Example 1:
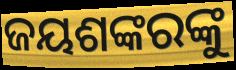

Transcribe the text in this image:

ଜୟଶଙ୍କରଙ୍କୁ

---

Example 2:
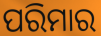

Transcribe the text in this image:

ପରିମାର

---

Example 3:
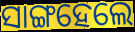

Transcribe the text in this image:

ସାଙ୍ଗହେଲେ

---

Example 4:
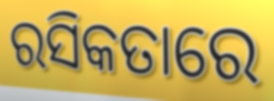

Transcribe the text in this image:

ରସିକତାରେ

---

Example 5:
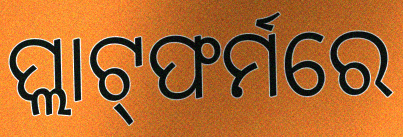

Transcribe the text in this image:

ପ୍ଲାଟ୍‌ଫର୍ମରେ